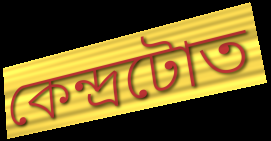
কেন্দ্ৰটোত